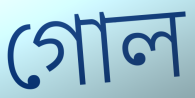
গোল